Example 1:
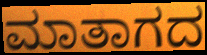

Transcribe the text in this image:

ಮಾತಾಗದ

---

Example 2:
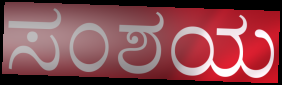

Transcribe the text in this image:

ಸಂಶಯ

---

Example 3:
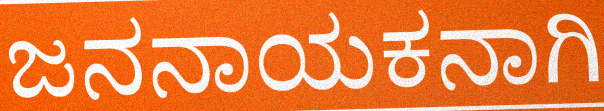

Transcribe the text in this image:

ಜನನಾಯಕನಾಗಿ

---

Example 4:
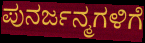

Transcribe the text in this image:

ಪುನರ್ಜನ್ಮಗಳಿಗೆ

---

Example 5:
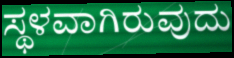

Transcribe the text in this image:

ಸ್ಥಳವಾಗಿರುವುದು